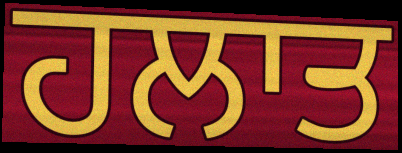
ਹਲਾਤ